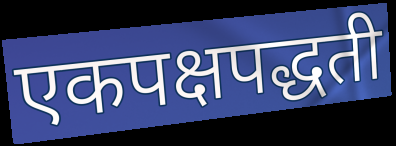
एकपक्षपद्धती